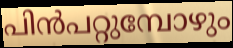
പിൻപറ്റുമ്പോഴും